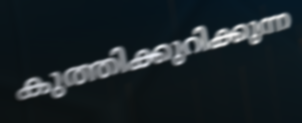
കുത്തിക്കുറിക്കുന്ന